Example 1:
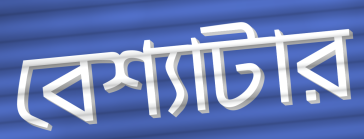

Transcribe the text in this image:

বেশ্যাটার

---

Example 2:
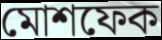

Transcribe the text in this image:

মোশফেক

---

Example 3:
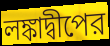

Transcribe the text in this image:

লঙ্কাদ্বীপের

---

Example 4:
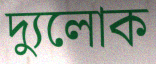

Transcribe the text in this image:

দ্যুলোক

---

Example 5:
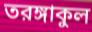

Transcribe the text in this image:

তরঙ্গাকুল